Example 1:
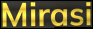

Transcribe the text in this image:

Mirasi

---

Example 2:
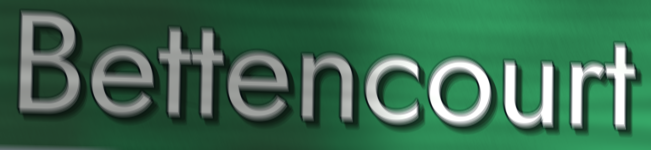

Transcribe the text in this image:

Bettencourt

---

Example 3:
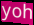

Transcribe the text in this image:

yoh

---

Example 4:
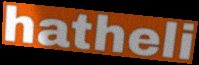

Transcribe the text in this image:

hatheli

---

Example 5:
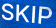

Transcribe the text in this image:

SKIP